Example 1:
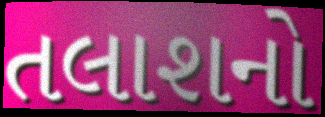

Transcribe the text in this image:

તલાશનો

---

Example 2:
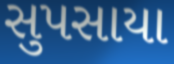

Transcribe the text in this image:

સુપસાયા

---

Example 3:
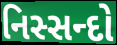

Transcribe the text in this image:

નિસ્સન્દો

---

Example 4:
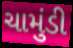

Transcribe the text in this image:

ચામુંડી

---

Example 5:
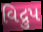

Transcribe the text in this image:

વિદ્રુપ